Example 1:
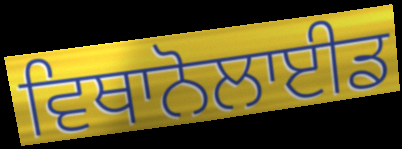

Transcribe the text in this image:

ਵਿਥਾਨੋਲਾਈਡ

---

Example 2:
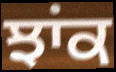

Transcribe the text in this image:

ਝਾਂਕ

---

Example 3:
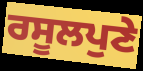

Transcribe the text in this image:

ਰਸੂਲਪੁਣੇ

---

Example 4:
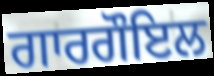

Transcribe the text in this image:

ਗਾਰਗੌਇਲ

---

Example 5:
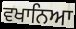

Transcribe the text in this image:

ਵਖਾਨਿਆ